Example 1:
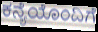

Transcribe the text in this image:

ಕನ್ಯೆಯೊಂದಿಗೆ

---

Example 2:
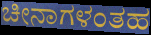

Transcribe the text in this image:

ಚೀನಾಗಳಂತಹ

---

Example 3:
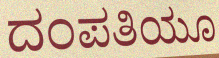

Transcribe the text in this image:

ದಂಪತಿಯೂ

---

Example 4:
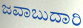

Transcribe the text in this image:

ಜವಾಬುದಾರಿ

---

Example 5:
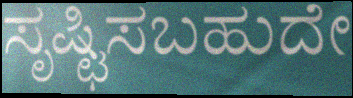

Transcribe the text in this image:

ಸೃಷ್ಟಿಸಬಹುದೇ